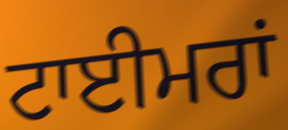
ਟਾਈਮਰਾਂ